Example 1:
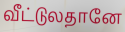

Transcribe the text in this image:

வீட்டுலதானே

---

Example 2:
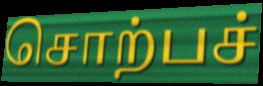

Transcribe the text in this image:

சொற்பச்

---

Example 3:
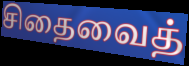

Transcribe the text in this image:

சிதைவைத்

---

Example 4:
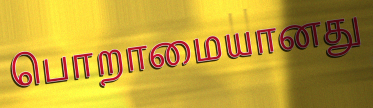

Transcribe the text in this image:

பொறாமையானது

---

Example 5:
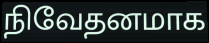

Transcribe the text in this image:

நிவேதனமாக